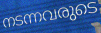
നടന്നവരുടെ